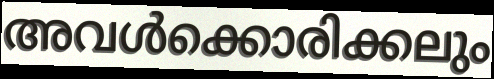
അവൾക്കൊരിക്കലും